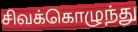
சிவக்கொழுந்து